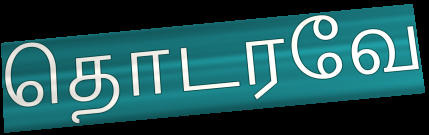
தொடரவே